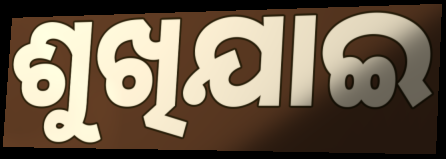
ଶୁଖିଯାଇ